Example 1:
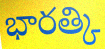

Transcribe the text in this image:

భారత్కి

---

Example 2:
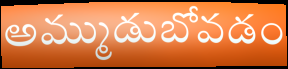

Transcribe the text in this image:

అమ్ముడుబోవడం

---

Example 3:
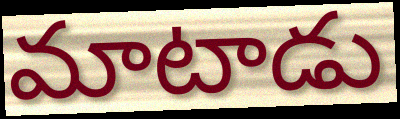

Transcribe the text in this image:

మాటాడు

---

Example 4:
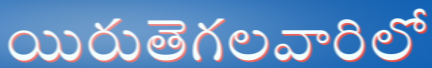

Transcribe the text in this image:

యిరుతెగలవారిలో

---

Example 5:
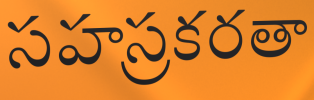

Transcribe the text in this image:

సహస్రకరతా